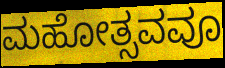
ಮಹೋತ್ಸವವೂ